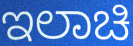
ಇಲಾಚಿ